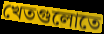
খেতগুলোতে